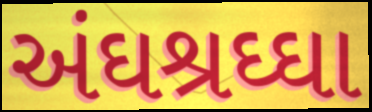
અંઘશ્રઘ્ઘા